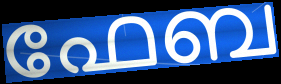
ഫേബ